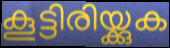
കൂട്ടിരിയ്ക്കുക